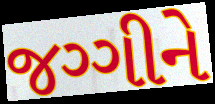
જગ્ગીને